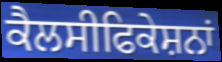
ਕੈਲਸੀਫਿਕੇਸ਼ਨਾਂ